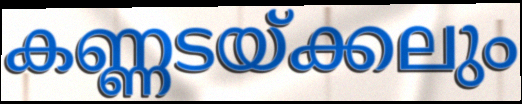
കണ്ണടയ്ക്കലും